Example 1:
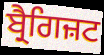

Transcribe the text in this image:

ਬ੍ਰੈਗਿਜ਼ਟ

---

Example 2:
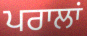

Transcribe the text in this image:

ਪਰਾਲਾਂ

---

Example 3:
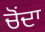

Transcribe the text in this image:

ਚੋਂਦਾ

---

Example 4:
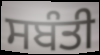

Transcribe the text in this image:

ਸਬੰਤੀ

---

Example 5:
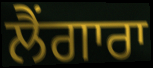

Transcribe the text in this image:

ਲੈਂਗਾਰਾ